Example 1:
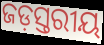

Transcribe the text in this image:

ଜଡ଼ସ୍ତରୀୟ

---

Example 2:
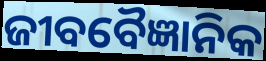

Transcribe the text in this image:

ଜୀବବୈଜ୍ଞାନିକ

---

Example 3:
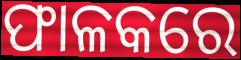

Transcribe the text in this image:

ଫାଳକରେ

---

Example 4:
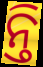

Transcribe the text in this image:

ନ୍ତି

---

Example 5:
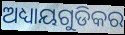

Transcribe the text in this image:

ଅଧ୍ୟାୟଗୁଡିକର